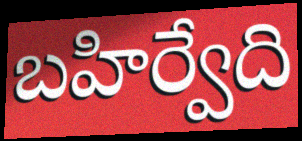
బహిర్వేది